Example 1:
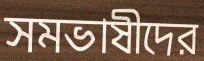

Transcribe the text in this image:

সমভাষীদের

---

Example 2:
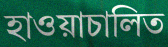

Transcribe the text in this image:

হাওয়াচালিত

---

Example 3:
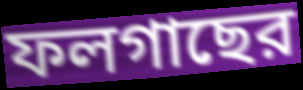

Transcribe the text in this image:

ফলগাছের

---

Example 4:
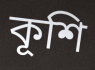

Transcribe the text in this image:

কূশি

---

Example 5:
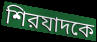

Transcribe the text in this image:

শিরযাদকে